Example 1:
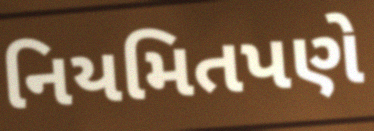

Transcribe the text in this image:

નિયમિતપણે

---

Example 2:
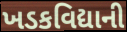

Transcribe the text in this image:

ખડકવિદ્યાની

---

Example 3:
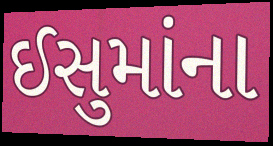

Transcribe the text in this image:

ઈસુમાંના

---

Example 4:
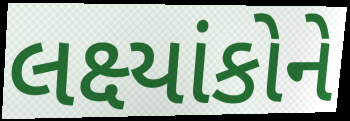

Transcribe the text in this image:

લક્ષ્યાંકોને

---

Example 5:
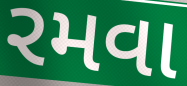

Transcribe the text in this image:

રમવા